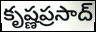
కృష్ణప్రసాద్